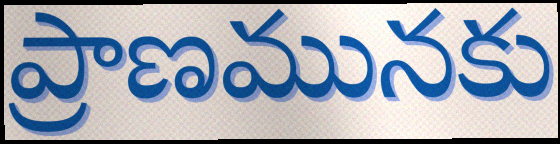
ప్రాణమునకు